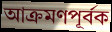
আক্রমণপূর্বক